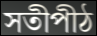
সতীপীঠ